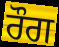
ਰੌਗ